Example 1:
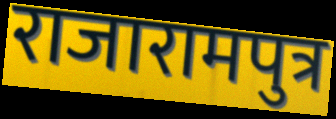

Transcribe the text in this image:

राजारामपुत्र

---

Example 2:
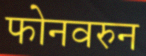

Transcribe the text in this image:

फोनवरुन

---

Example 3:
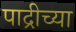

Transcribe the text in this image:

पाद्रीच्या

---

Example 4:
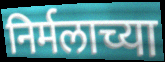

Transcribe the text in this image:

निर्मलाच्या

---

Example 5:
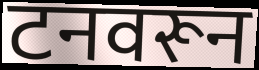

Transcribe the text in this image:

टनवरून